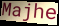
Majhe